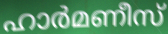
ഹാർമണീസ്